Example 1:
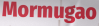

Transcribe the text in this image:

Mormugao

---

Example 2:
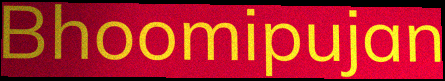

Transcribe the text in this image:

Bhoomipujan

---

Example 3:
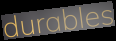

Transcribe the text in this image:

durables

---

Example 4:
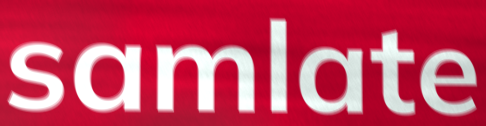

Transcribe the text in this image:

samlate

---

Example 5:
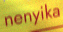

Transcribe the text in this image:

nenyika